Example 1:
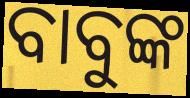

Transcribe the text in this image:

ବାବୁଙ୍କ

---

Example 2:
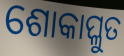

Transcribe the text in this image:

ଶୋକାପ୍ଳୁତ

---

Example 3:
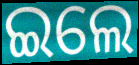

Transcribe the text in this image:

ଇଲେ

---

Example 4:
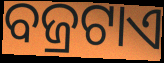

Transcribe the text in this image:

ବଜ୍ରଟାଏ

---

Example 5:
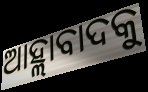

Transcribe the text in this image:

ଆହ୍ଲାବାଦକୁ